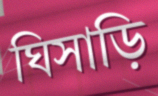
ঘিসাড়ি